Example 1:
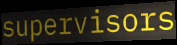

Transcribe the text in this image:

supervisors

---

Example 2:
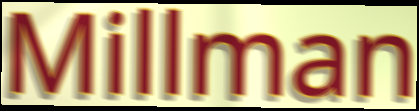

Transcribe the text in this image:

Millman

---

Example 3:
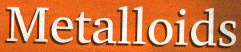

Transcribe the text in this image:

Metalloids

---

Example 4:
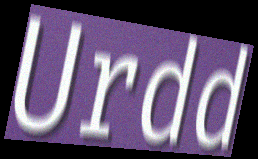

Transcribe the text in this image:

Urdd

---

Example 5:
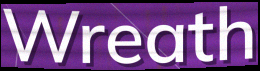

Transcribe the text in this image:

Wreath